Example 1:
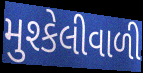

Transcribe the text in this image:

મુશ્કેલીવાળી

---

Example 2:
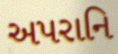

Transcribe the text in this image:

અપરાનિ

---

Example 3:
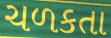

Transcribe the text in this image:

ચળકતા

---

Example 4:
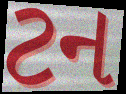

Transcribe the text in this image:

ટન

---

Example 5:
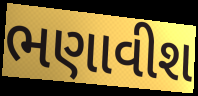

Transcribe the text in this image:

ભણાવીશ